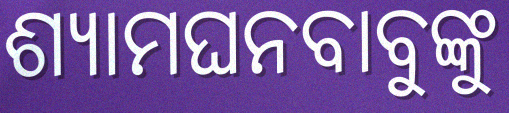
ଶ୍ୟାମଘନବାବୁଙ୍କୁ